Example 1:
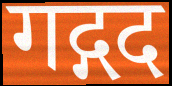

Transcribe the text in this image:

गद्गद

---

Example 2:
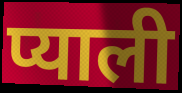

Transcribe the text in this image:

प्याली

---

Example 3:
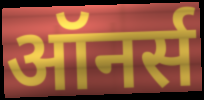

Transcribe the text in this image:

ऑनर्स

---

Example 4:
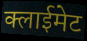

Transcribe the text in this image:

क्लाईमेट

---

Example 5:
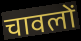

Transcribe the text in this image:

चावलों